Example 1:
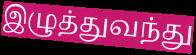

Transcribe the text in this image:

இழுத்துவந்து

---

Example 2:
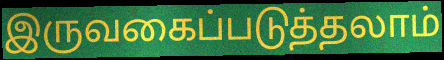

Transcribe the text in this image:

இருவகைப்படுத்தலாம்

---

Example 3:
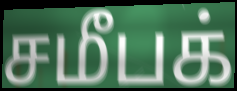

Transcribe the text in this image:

சமீபக்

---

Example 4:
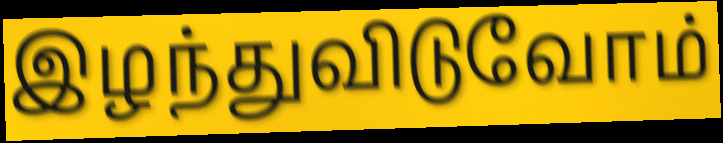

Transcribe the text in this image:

இழந்துவிடுவோம்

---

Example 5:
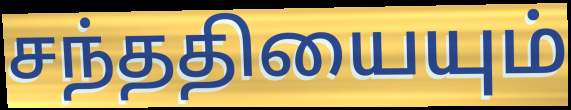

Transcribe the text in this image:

சந்ததியையும்